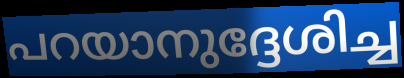
പറയാനുദ്ദേശിച്ച